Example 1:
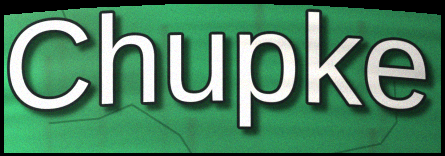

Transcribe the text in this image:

Chupke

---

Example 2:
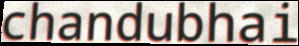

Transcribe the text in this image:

chandubhai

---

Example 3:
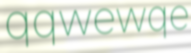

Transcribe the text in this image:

qqwewqe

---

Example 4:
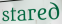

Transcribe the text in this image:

stared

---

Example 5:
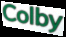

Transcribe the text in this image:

Colby